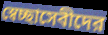
স্বেচ্ছাসেবীদের